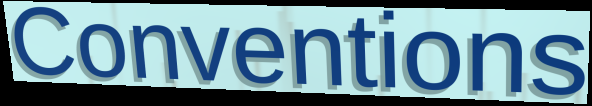
Conventions